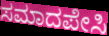
ಸಮಾದಪೇಸಿ